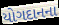
યોગદાનના